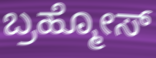
ಬ್ರಹ್ಮೋಸ್